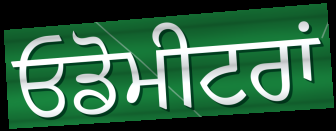
ਓਡੋਮੀਟਰਾਂ